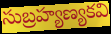
సుబ్రహ్యణ్యకవి